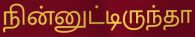
நின்னுட்டிருந்தா